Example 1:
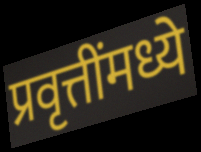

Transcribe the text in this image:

प्रवृत्तींमध्ये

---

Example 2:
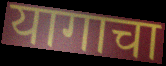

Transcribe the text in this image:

यागाचा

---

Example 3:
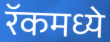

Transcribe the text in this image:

रॅकमध्ये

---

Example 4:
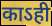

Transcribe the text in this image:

काऽही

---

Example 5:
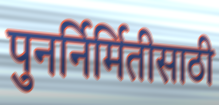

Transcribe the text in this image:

पुनर्निर्मितीसाठी